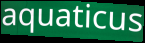
aquaticus